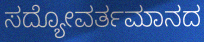
ಸದ್ಯೋವರ್ತಮಾನದ